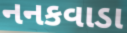
નનકવાડા